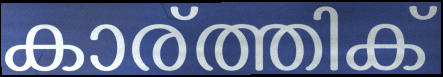
കാര്ത്തിക്